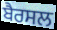
ਬੈਰਸਲ